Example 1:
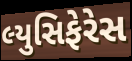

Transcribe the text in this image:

લ્યુસિફેરેસ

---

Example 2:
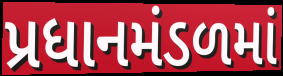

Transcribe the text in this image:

પ્રધાનમંડળમાં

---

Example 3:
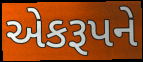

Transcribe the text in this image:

એકરૂપને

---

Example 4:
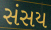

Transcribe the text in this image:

સંસય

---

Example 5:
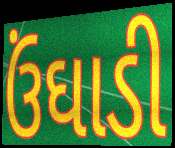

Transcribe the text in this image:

ઉંઘાડી